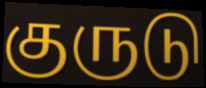
குருடு